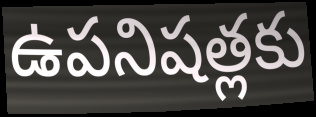
ఉపనిషత్లకు